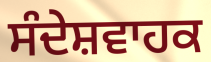
ਸੰਦੇਸ਼ਵਾਹਕ